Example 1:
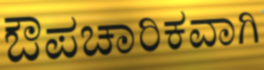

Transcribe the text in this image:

ಔಪಚಾರಿಕವಾಗಿ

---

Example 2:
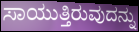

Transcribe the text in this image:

ಸಾಯುತ್ತಿರುವುದನ್ನು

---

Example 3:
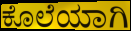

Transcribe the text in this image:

ಕೊಲೆಯಾಗಿ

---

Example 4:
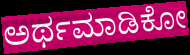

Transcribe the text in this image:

ಅರ್ಥಮಾಡಿಕೋ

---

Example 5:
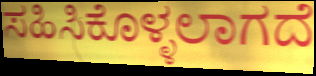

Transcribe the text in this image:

ಸಹಿಸಿಕೊಳ್ಳಲಾಗದೆ